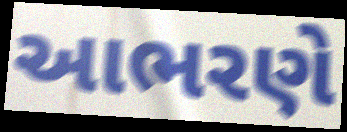
આભરણે